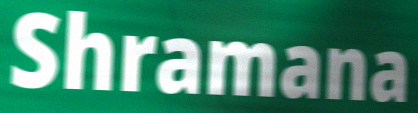
Shramana